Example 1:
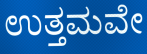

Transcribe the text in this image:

ಉತ್ತಮವೇ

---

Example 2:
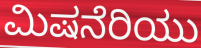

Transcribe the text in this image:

ಮಿಷನೆರಿಯು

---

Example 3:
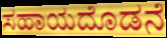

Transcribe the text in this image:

ಸಹಾಯದೊಡನೆ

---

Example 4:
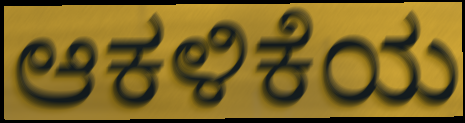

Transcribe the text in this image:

ಆಕಳಿಕೆಯ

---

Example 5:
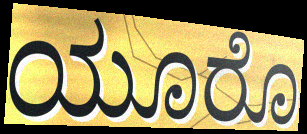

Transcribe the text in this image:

ಯೂರೊ